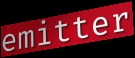
emitter